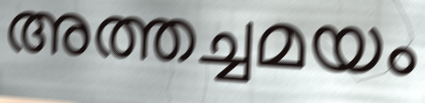
അത്തച്ചമയം